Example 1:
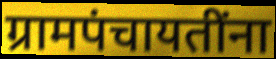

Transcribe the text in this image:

ग्रामपंचायतींना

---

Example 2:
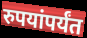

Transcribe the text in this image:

रुपयांपर्यंत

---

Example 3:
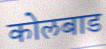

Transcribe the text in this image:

कोलबाड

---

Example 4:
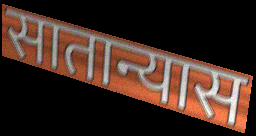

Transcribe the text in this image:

सातान्यास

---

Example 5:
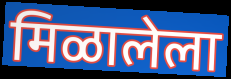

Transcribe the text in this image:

मिळालेला